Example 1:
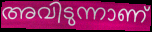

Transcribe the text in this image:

അവിടുന്നാണ്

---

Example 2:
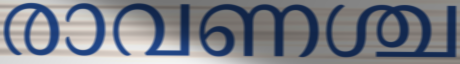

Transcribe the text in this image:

രാവണശ്ച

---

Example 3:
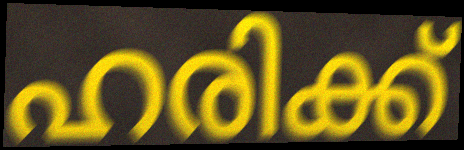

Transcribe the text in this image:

ഹരിക്ക്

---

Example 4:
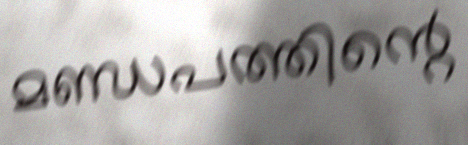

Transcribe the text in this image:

മണ്ഡപത്തിന്റെ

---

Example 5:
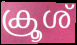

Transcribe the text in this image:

ക്രൂശ്